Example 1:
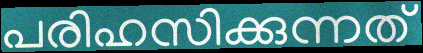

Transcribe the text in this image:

പരിഹസിക്കുന്നത്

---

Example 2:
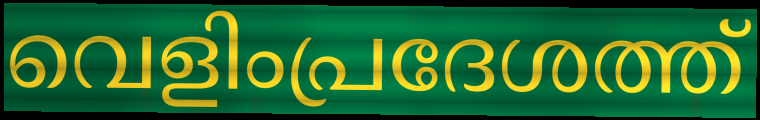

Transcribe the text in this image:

വെളിംപ്രദേശത്ത്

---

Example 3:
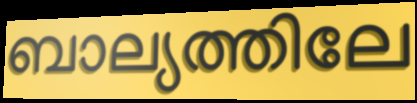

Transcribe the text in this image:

ബാല്യത്തിലേ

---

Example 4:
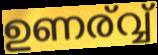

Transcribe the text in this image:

ഉണര്വ്വ്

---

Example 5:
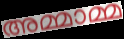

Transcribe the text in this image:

അമ്മാമ്മ